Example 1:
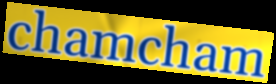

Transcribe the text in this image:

chamcham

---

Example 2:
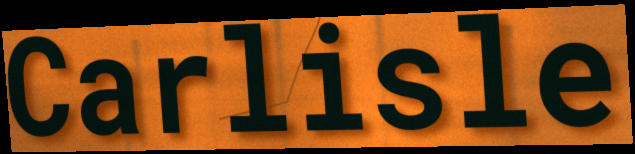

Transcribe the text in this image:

Carlisle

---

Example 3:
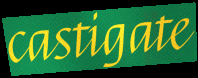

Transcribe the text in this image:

castigate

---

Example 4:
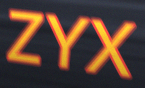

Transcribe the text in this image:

ZYX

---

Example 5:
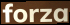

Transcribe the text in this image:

forza